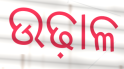
ଉଢ଼ାଳ